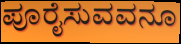
ಪೂರೈಸುವವನೂ